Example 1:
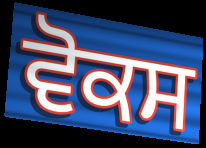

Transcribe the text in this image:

ਵੋਕਸ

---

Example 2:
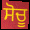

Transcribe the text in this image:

ਸੋਚੂ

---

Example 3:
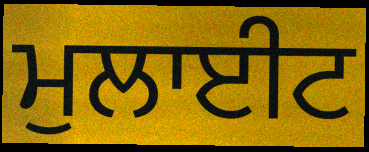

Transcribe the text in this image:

ਮੁਲਾਈਟ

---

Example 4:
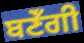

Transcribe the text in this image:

ਬਣੇਁਗੀ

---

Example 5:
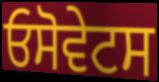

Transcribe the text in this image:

ਓਸੋਵੇਟਸ